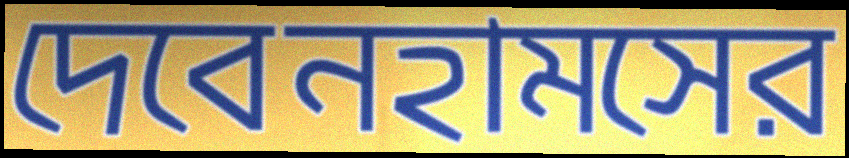
দেবেনহামসের